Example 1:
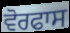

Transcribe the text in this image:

ਵੋਰਫਾਸ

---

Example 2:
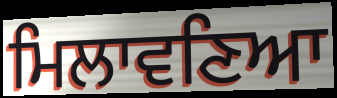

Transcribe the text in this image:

ਮਿਲਾਵਣਿਆ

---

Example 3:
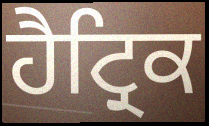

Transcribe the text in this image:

ਹੈਟ੍ਰਿਕ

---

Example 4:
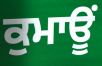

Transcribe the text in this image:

ਕੁਮਾਊਂ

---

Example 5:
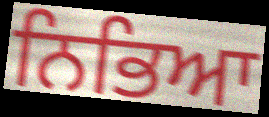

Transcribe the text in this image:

ਨਿਭਿਆ